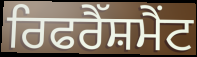
ਰਿਫਰੈੱਸ਼ਮੈਂਟ